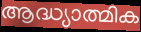
ആദ്ധ്യാത്മിക